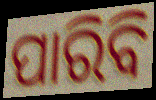
ପାରିବି